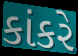
કાંકરે